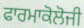
ਫਾਰਮਾਕੋਲੋਜੀ